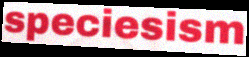
speciesism